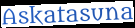
Askatasuna